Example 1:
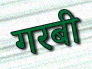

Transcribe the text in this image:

गरबी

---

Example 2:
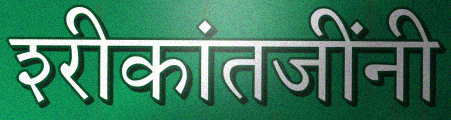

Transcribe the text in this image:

श्रीकांतजींनी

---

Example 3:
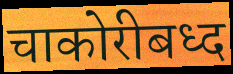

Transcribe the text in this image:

चाकोरीबध्द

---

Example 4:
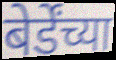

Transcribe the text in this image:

बेर्डेंच्या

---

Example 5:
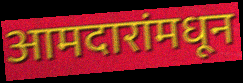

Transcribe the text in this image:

आमदारांमधून